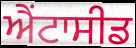
ਐਂਟਾਸੀਡ